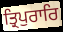
ਤ੍ਰਿਪੁਰਾਰਿ